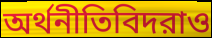
অর্থনীতিবিদরাও